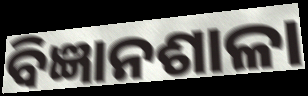
ବିଜ୍ଞାନଶାଳା